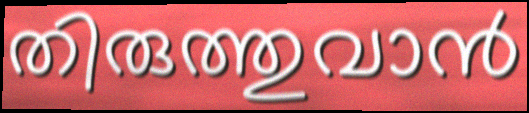
തിരുത്തുവാൻ